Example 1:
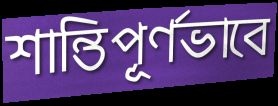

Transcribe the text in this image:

শান্তিপূর্ণভাবে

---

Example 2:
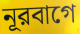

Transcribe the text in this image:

নূরবাগে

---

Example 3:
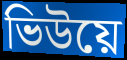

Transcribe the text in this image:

ভিউয়ে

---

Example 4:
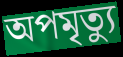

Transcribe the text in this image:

অপমৃত্যু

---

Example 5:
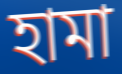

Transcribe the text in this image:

হামা